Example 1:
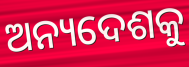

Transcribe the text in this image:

ଅନ୍ୟଦେଶକୁ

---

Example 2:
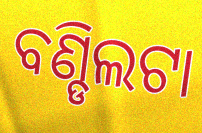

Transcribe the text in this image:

ବଣ୍ଡିଲଟା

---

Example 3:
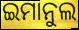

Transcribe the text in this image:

ଇମାନୁଲ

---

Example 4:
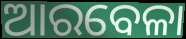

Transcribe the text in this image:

ଆରବେଳା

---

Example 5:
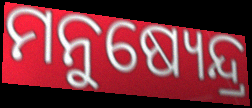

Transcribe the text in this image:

ମନୁଷ୍ୟେନ୍ଦ୍ର